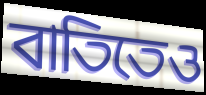
বাতিতেও